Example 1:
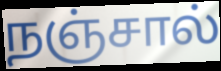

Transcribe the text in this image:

நஞ்சால்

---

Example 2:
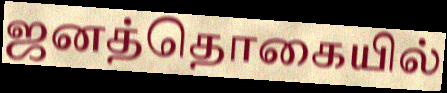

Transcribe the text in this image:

ஜனத்தொகையில்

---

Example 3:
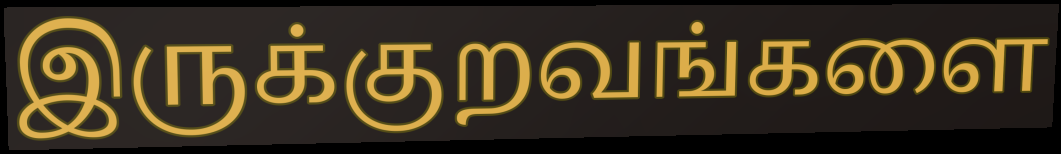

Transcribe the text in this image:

இருக்குறவங்களை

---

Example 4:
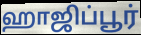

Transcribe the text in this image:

ஹாஜிப்பூர்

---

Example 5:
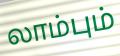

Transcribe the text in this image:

லாம்பும்